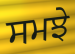
ਸਮਝੇ